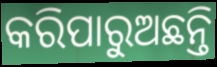
କରିପାରୁଅଛନ୍ତି